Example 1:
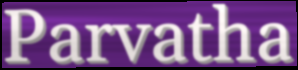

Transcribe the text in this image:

Parvatha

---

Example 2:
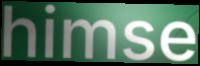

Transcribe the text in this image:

himse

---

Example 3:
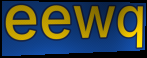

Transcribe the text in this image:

eewq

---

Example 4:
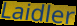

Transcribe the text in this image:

Laidler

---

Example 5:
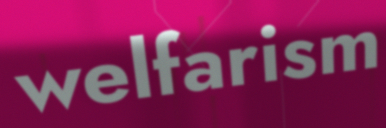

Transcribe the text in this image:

welfarism